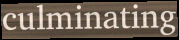
culminating